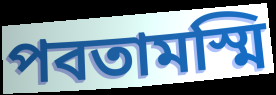
পবতামস্মি